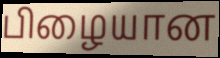
பிழையான